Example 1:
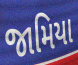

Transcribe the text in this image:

જામિયા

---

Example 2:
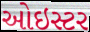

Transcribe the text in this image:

ઓઇસ્ટર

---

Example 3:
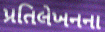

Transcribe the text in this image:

પ્રતિલેખનના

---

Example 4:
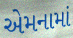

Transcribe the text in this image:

એમનામાં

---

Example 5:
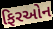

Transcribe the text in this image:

ફિરઓન